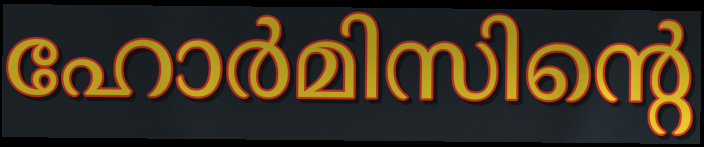
ഹോർമിസിന്റെ